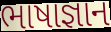
ભાષાજ્ઞાન